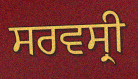
ਸਰਵਸ੍ਰੀ